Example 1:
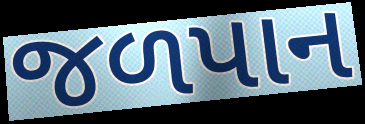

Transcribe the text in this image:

જળપાન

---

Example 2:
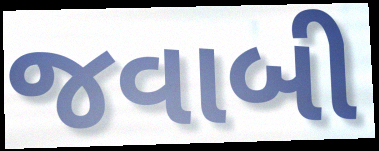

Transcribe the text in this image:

જવાબી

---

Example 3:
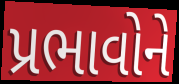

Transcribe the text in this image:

પ્રભાવોને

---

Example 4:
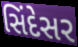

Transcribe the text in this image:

સિંદેસર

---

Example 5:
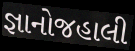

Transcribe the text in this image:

જ્ઞાનોજહાલી